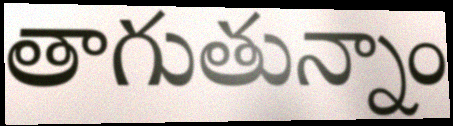
తాగుతున్నాం